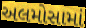
અલમોસામાં